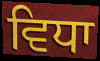
ਵਿਧਾ